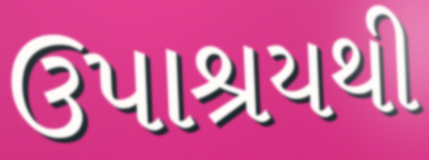
ઉપાશ્રયથી